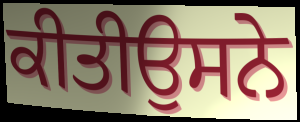
ਕੀਤੀਉਸਨੇ